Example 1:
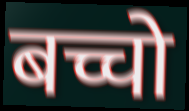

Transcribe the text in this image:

बच्चो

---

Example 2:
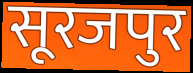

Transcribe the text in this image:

सूरजपुर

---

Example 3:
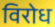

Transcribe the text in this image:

विरोध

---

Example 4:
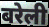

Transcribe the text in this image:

बरेली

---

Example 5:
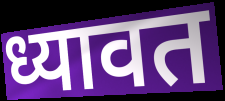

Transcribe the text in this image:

ध्यावत